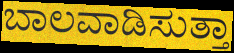
ಬಾಲವಾಡಿಸುತ್ತಾ